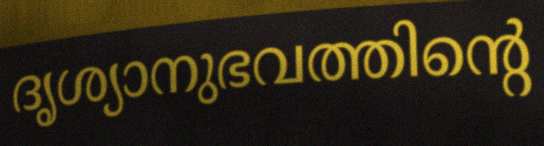
ദൃശ്യാനുഭവത്തിന്റെ